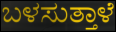
ಬಳಸುತ್ತಾಳೆ